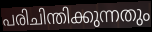
പരിചിന്തിക്കുന്നതും